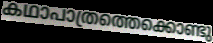
കഥാപാത്രത്തെക്കൊണ്ടു